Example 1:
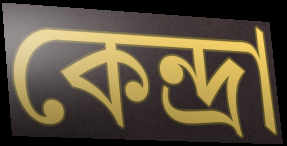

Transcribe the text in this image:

কেন্দ্রা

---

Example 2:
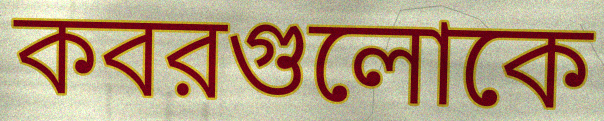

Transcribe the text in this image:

কবরগুলোকে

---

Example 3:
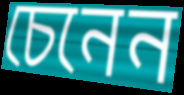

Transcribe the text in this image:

চেনেন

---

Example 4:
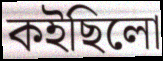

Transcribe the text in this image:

কইছিলো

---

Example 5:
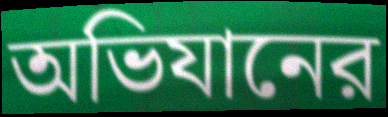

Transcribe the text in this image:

অভিযানের